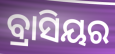
ବ୍ରାସିୟର